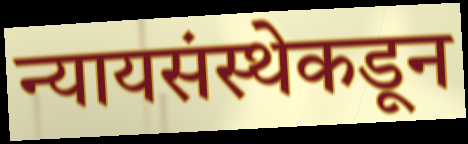
न्यायसंस्थेकडून